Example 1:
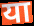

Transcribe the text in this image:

या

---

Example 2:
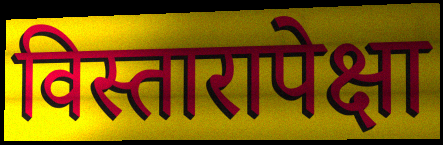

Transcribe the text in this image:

विस्तारापेक्षा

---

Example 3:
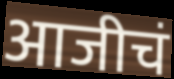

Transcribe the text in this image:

आजीचं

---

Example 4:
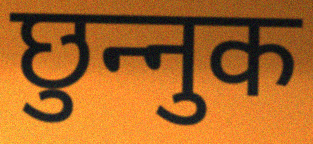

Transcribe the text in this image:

छुन्नुक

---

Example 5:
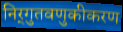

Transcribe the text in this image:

निर्गुतवणुकीकरण